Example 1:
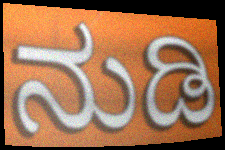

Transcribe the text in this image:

ನುಡಿ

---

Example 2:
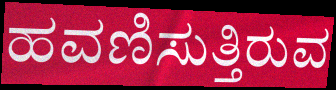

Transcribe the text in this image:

ಹವಣಿಸುತ್ತಿರುವ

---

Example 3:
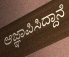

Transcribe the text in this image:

ಆಜ್ಞಾಪಿಸಿದ್ದಾನೆ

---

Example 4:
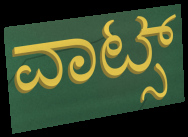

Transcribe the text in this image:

ವಾಟ್ಸ್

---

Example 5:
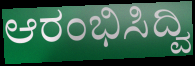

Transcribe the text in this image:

ಆರಂಭಿಸಿದ್ವಿ